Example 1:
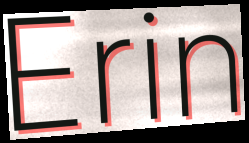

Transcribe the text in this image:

Erin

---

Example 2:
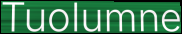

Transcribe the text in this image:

Tuolumne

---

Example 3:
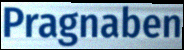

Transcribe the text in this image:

Pragnaben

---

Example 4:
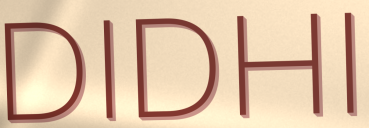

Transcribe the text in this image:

DIDHI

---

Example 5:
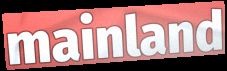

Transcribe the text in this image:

mainland